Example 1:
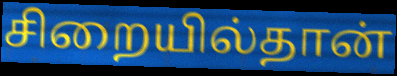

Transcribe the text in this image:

சிறையில்தான்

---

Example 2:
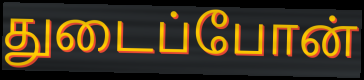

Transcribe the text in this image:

துடைப்போன்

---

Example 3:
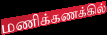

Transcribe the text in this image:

மணிக்கணக்கில்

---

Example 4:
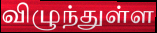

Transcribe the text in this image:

விழுந்துள்ள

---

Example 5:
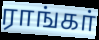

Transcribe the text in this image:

ராங்கர்